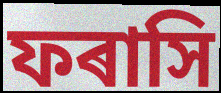
ফৰাসি